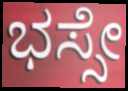
ಭಸ್ಸೇ